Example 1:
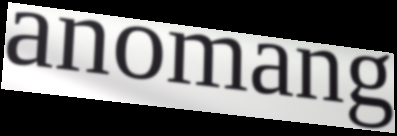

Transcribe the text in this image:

anomang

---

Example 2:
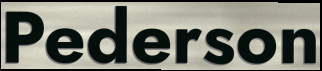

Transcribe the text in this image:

Pederson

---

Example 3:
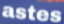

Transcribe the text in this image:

astes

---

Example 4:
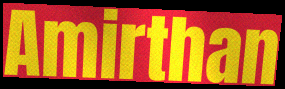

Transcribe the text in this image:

Amirthan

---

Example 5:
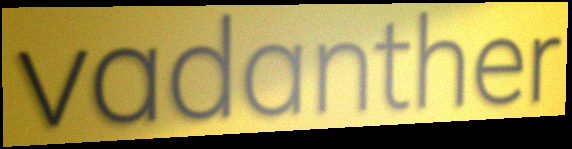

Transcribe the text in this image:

vadanther